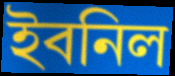
ইবনিল